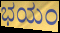
ಭಯಂ